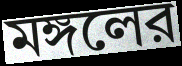
মঙ্গলের